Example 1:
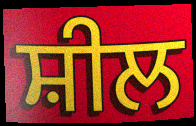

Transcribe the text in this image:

ਸ਼ੀਲ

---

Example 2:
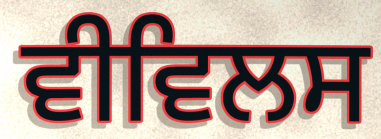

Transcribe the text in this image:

ਵੀਵਿਲਸ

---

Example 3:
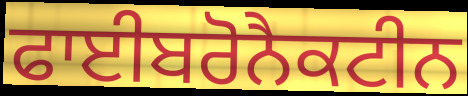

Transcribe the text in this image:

ਫਾਈਬਰੋਨੈਕਟੀਨ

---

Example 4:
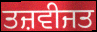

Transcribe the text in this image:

ਤਜ਼ਵੀਜਤ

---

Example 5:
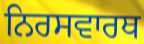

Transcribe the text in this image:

ਨਿਰਸਵਾਰਥ